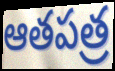
ఆతపత్ర